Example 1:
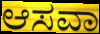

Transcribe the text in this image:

ಆಸವಾ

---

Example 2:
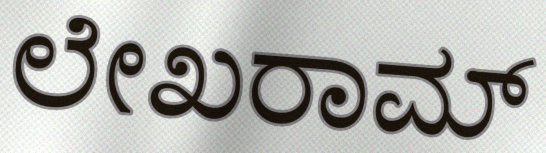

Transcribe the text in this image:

ಲೇಖರಾಮ್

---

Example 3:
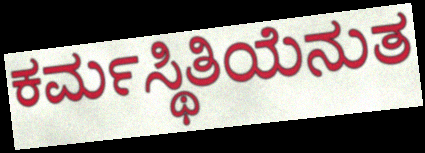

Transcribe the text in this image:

ಕರ್ಮಸ್ಥಿತಿಯೆನುತ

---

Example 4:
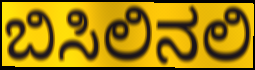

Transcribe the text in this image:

ಬಿಸಿಲಿನಲಿ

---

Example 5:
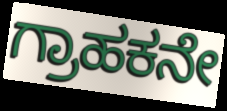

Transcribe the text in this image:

ಗ್ರಾಹಕನೇ